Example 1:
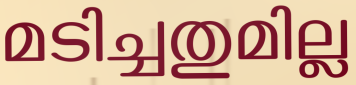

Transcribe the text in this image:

മടിച്ചതുമില്ല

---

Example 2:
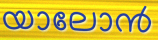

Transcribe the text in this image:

യാലോൻ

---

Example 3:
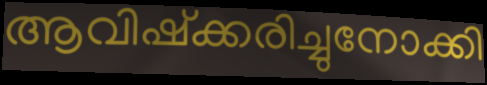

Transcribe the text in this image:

ആവിഷ്ക്കരിച്ചുനോക്കി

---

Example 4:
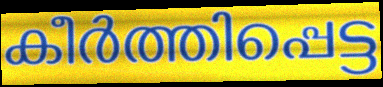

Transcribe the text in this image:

കീർത്തിപ്പെട്ട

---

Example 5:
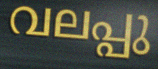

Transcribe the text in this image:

വലപ്പു